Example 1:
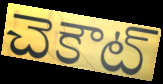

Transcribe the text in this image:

చెకౌట్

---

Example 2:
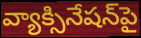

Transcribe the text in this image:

వ్యాక్సినేషన్‌పై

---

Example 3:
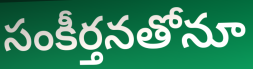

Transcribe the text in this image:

సంకీర్తనతోనూ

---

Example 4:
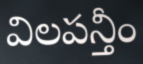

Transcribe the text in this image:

విలపన్తీం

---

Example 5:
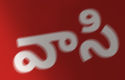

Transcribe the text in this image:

వాసి